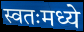
स्वतःमध्ये